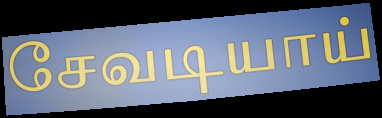
சேவடியாய்